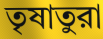
তৃষাতুরা